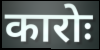
कारोः